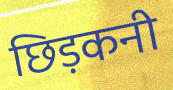
छिड़कनी